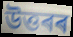
উত্তৰৰ